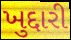
ખુદ્દારી